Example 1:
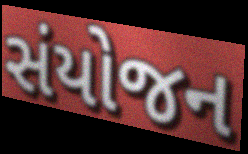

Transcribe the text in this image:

સંયોજન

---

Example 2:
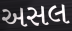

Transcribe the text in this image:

અસલ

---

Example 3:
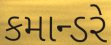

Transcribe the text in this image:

કમાન્ડરે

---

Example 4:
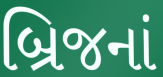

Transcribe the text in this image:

બ્રિજનાં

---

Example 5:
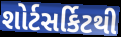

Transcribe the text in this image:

શોર્ટસર્કિટથી